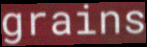
grains